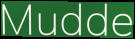
Mudde